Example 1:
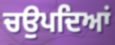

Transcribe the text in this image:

ਚਉਪਦਿਆਂ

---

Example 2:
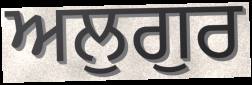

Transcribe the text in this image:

ਅਲੁਗੁਰ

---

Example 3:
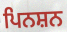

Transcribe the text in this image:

ਪਿਨਸ਼ਨ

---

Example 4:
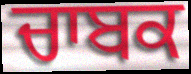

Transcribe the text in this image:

ਚਾਬਕ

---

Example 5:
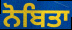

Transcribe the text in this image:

ਨੋਬਿਤਾ